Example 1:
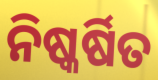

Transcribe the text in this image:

ନିଷ୍କର୍ଷିତ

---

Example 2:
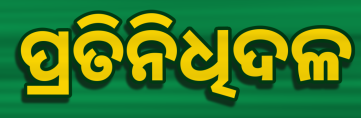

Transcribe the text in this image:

ପ୍ରତିନିଧିଦଳ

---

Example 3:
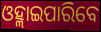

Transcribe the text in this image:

ଓହ୍ଲାଇପାରିବେ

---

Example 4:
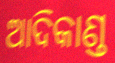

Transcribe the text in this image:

ଆଦିକାଣ୍ଡ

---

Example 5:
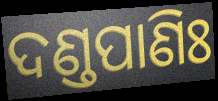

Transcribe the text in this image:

ଦଣ୍ଡପାଣିଃ